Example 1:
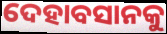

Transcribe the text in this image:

ଦେହାବସାନକୁ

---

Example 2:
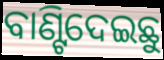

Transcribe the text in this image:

ବାଣ୍ଟିଦେଇଛୁ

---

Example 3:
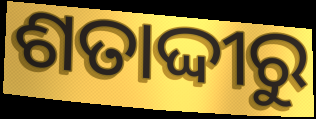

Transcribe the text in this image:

ଶତାଦ୍ଦୀରୁ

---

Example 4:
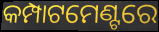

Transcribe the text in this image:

କମ୍ପାଟମେଣ୍ଟରେ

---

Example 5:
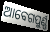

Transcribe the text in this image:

ଆବେଗପୁର୍ଣ୍ଣ